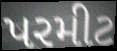
પરમીટ